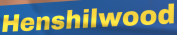
Henshilwood